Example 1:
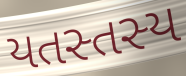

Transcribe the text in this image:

યતસ્તસ્ય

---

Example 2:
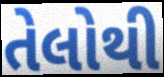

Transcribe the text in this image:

તેલોથી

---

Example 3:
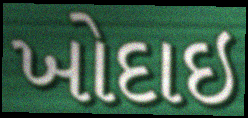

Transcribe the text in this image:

ખોદાઇ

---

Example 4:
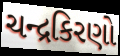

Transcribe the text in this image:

ચન્દ્રકિરણો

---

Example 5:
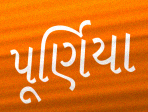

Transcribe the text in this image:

પૂર્ણિયા